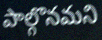
పాల్గొనమని